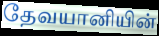
தேவயானியின்